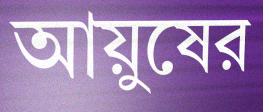
আয়ুষের